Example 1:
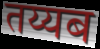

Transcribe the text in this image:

तय्यब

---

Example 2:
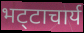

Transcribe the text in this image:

भट्‍टाचार्य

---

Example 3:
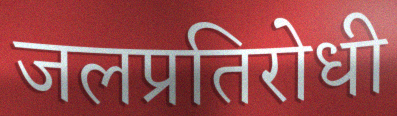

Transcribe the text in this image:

जलप्रतिरोधी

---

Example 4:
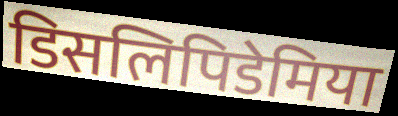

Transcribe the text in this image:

डिसलिपिडेमिया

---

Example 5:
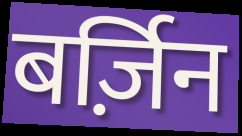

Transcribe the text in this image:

बर्ज़िन